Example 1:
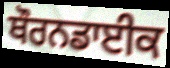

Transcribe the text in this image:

ਥੌਰਨਡਾਈਕ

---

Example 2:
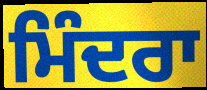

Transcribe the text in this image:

ਮਿੰਦਰਾ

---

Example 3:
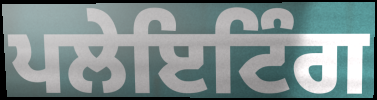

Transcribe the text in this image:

ਪਲੇਇਟਿੰਗ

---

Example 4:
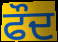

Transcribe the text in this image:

ਫੌਦ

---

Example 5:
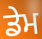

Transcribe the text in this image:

ਡੇਮ